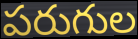
పరుగుల